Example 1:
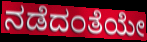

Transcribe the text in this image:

ನಡೆದಂತೆಯೇ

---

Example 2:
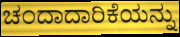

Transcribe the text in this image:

ಚಂದಾದಾರಿಕೆಯನ್ನು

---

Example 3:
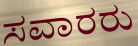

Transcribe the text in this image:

ಸವಾರರು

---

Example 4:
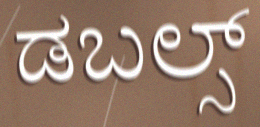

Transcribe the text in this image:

ಡಬಲ್ಸ್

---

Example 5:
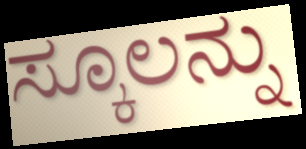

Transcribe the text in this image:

ಸ್ಕೂಲನ್ನು